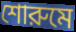
শোরুমে